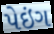
પેઇંગ